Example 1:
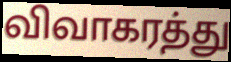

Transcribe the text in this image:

விவாகரத்து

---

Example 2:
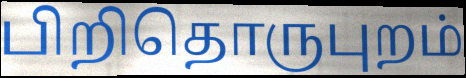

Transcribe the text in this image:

பிறிதொருபுறம்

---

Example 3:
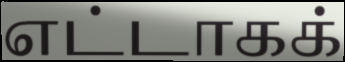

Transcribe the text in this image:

எட்டாகக்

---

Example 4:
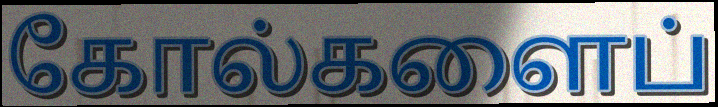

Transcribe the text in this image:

கோல்களைப்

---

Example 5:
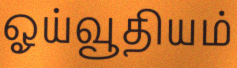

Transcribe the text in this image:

ஓய்வூதியம்